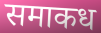
समाकध